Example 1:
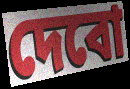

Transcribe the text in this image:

দেবো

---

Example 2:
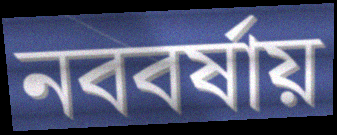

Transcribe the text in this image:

নববর্ষায়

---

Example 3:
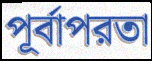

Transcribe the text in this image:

পূর্বাপরতা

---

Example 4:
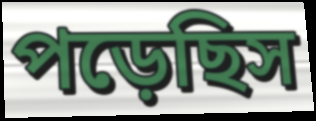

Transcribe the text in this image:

পড়েছিস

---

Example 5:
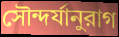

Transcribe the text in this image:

সৌন্দর্যানুরাগ